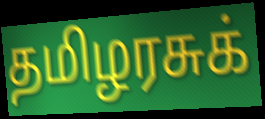
தமிழரசுக்